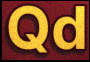
Qd